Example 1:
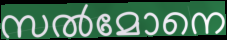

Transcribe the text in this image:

സൽമോനെ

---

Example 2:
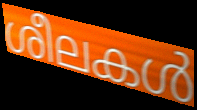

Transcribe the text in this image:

ശീലകൾ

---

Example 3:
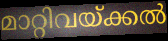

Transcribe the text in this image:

മാറ്റിവയ്ക്കൽ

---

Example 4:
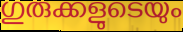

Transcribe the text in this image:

ഗുരുക്കളുടെയും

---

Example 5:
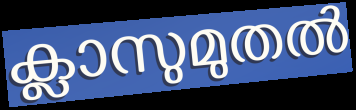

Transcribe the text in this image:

ക്ലാസുമുതൽ